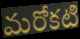
మరోకటి